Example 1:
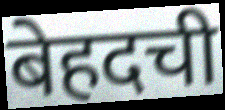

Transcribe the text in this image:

बेहदची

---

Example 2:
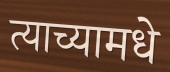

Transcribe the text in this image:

त्याच्यामधे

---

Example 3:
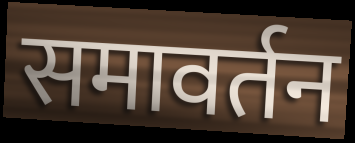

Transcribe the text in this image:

समावर्तन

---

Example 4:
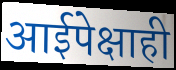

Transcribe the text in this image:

आईपेक्षाही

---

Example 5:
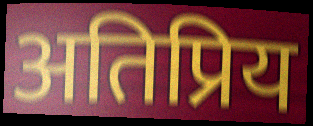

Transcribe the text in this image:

अतिप्रिय